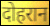
दोहरान